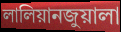
লালিয়ানজুয়ালা